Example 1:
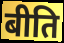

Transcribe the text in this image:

बीति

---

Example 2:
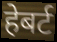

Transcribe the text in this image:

हेबर्ट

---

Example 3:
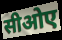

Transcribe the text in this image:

सीओए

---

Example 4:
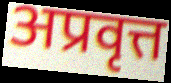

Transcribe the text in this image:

अप्रवृत्त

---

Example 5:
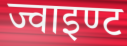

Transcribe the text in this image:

ज्वाइण्ट